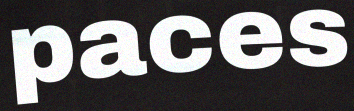
paces